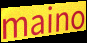
maino